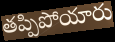
తప్పిపోయారు